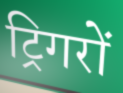
ट्रिगरों